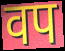
वप